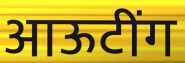
आऊटींग